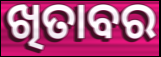
ଖିତାବର